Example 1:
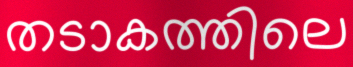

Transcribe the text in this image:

തടാകത്തിലെ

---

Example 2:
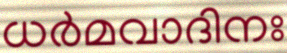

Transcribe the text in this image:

ധർമവാദിനഃ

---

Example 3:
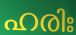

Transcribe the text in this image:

ഹരിഃ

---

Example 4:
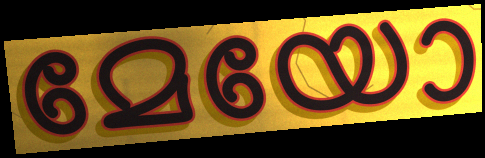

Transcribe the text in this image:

മേയോ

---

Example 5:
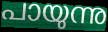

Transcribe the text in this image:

പായുന്നു